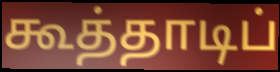
கூத்தாடிப்